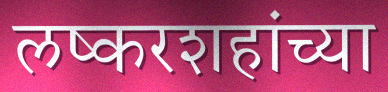
लष्करशहांच्या